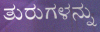
ತುರುಗಳನ್ನು